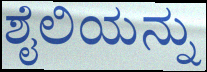
ಶೈಲಿಯನ್ನು